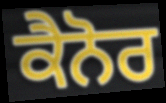
ਕੈਨੋਰ